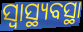
ସ୍ଵାସ୍ଥ୍ୟବସ୍ଥା